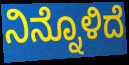
ನಿನ್ನೊಳಿದೆ